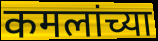
कमलांच्या